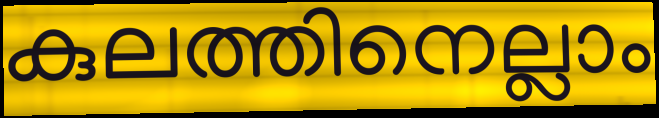
കുലത്തിനെല്ലാം